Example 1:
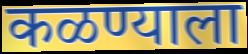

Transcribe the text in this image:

कळण्याला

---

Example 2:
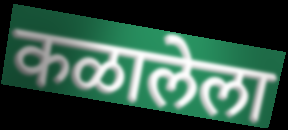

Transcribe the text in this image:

कळालेला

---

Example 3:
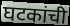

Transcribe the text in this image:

घटकांची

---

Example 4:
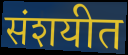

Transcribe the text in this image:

संशयीत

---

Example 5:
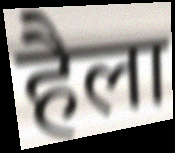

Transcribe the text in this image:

हैला